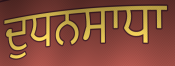
ਦੁਧਨਸਾਧਾ